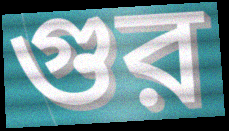
গুর